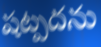
షట్పదను